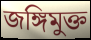
জঙ্গিমুক্ত